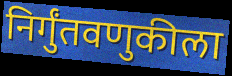
निर्गुंतवणुकीला